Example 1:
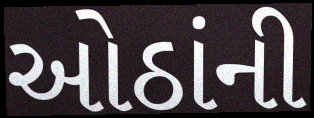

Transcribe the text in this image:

ઓઠાંની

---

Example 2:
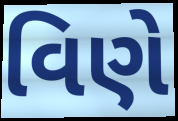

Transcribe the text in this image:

વિણે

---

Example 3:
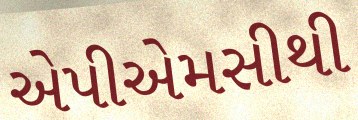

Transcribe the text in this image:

એપીએમસીથી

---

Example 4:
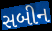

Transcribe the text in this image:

સબીન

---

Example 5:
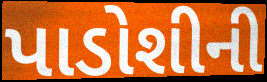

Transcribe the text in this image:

પાડોશીની